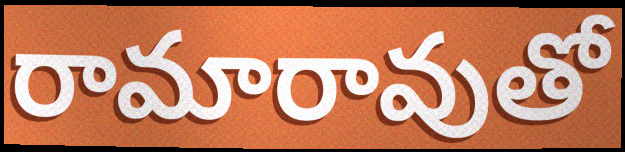
రామారావుతో